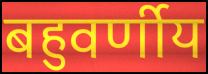
बहुवर्णीय